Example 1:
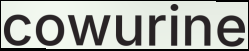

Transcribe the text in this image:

cowurine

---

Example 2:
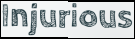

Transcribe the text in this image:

Injurious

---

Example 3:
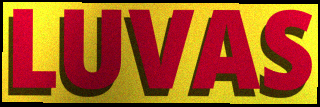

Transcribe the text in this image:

LUVAS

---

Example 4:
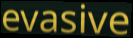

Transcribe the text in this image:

evasive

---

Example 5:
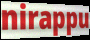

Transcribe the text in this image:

nirappu